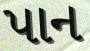
પાન